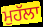
ਮੁਹੱਲਾ